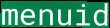
menuid